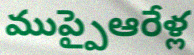
ముప్పైఆరేళ్ల